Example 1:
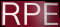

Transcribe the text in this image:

RPE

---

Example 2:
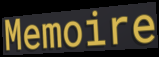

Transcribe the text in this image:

Memoire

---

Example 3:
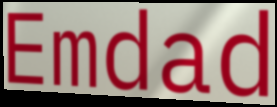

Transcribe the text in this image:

Emdad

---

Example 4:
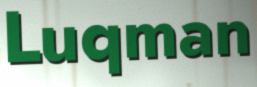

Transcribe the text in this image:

Luqman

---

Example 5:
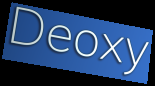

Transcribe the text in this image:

Deoxy